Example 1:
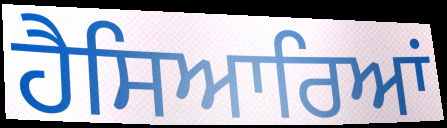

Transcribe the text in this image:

ਹੈਸਿਆਰਿਆਂ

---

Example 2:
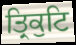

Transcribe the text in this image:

ਤ੍ਰਿਕੁਟਿ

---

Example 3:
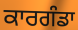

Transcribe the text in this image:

ਕਾਰਗੰਡਾ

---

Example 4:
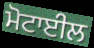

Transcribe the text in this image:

ਮੋਟਾਈਲ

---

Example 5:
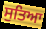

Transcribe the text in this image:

ਸੁਤਿਆ